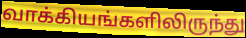
வாக்கியங்களிலிருந்து